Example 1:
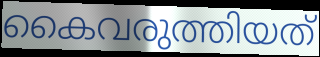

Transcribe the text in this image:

കൈവരുത്തിയത്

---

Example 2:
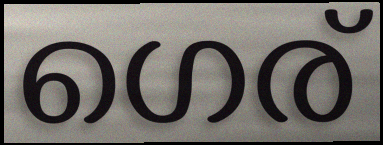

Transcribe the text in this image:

ഗെര്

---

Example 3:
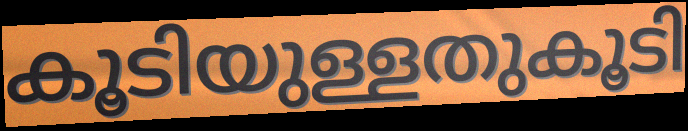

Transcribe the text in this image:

കൂടിയുള്ളതുകൂടി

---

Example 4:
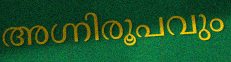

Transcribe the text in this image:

അഗ്നിരൂപവും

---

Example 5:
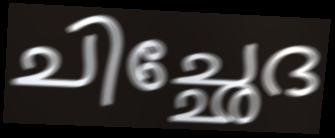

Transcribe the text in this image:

ചിച്ഛേദ